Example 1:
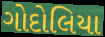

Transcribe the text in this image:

ગોદોલિયા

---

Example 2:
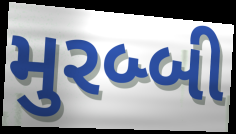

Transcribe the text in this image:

મુરબ્બી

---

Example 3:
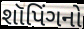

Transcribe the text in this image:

શૉપિંગનો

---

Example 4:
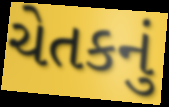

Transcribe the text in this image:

ચેતકનું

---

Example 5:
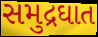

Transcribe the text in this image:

સમુદ્રઘાત